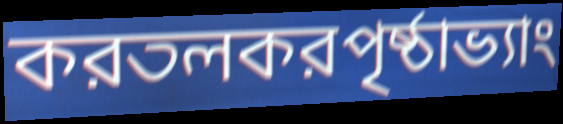
করতলকরপৃষ্ঠাভ্যাং